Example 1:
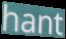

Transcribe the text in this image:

hant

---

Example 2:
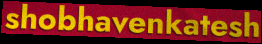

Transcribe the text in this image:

shobhavenkatesh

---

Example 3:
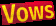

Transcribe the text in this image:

Vows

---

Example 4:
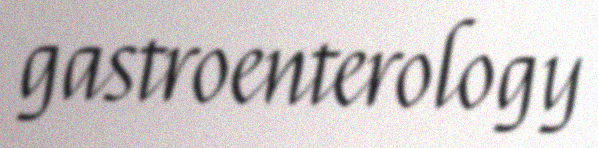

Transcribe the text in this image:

gastroenterology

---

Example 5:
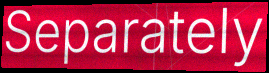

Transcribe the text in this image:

Separately